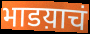
भाडय़ाचं